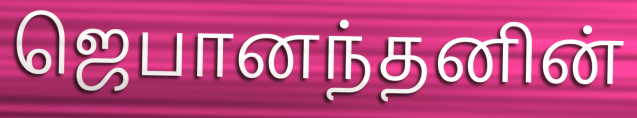
ஜெபானந்தனின்